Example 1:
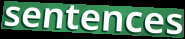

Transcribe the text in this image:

sentences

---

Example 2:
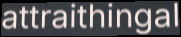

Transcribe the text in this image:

attraithingal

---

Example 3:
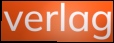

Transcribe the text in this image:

verlag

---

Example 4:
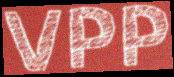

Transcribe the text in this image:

VPP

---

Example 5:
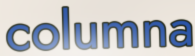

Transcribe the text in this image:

columna